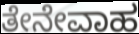
ತೇನೇವಾಹ